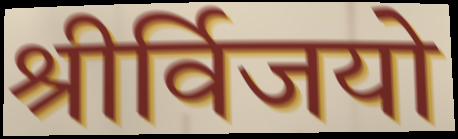
श्रीर्विजयो